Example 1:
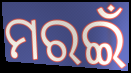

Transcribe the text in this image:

ମରଇଁ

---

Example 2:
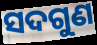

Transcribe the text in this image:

ସଦଗୁଣ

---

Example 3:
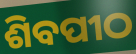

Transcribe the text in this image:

ଶିବପୀଠ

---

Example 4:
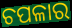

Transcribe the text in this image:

ଚପଳାର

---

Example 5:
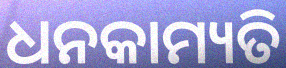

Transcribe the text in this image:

ଧନକାମ୍ୟତି